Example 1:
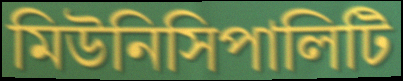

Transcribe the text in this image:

মিউনিসিপালিটি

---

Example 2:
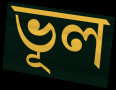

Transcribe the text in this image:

ভূল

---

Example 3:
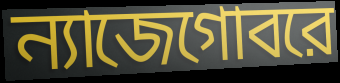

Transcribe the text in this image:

ন্যাজেগোবরে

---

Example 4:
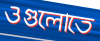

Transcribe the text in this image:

ওগুলোতে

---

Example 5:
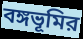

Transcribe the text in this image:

বঙ্গভূমির